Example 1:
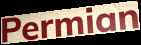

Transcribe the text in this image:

Permian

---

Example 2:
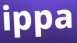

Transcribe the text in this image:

ippa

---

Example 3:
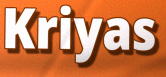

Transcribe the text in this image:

Kriyas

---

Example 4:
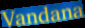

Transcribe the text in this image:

Vandana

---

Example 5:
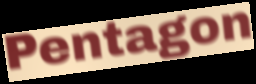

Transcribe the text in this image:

Pentagon